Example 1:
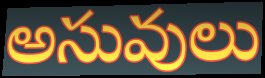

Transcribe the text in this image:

అసువులు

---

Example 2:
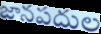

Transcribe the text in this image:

జానపదుల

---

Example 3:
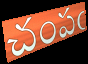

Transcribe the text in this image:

చంపఁ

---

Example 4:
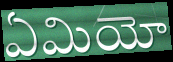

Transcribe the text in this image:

ఏమియో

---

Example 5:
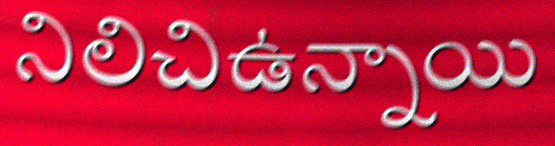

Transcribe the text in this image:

నిలిచిఉన్నాయి